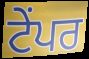
ਟੇਂਪਰ